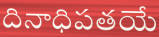
దినాధిపతయే